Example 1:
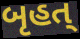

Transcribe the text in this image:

બૃહત્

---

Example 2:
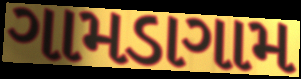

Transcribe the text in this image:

ગામડાગામ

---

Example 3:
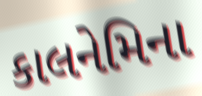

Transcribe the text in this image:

કાલનેમિના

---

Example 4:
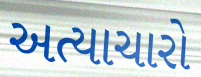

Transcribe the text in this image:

અત્યાચારો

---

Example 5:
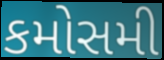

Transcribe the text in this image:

કમોસમી